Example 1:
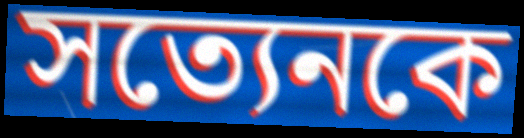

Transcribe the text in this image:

সত্যেনকে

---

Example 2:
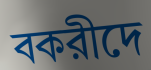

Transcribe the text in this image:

বকরীদে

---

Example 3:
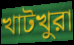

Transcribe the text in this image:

খাটখুরা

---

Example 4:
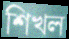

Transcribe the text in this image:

শিখল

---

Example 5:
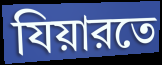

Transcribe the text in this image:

যিয়ারতে